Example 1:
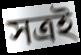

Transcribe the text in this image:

সত্ৰই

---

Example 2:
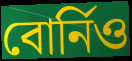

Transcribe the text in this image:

বোৰ্নিও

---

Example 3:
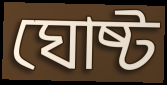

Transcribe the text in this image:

ঘোষ্ট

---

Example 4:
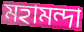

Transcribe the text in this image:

মহামন্দা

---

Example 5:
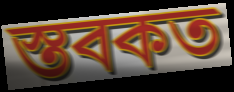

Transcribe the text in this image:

স্তবকত